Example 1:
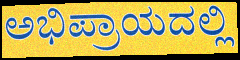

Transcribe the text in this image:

ಅಭಿಪ್ರಾಯದಲ್ಲಿ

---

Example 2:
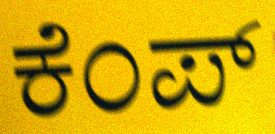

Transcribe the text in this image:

ಕೆಂಪ್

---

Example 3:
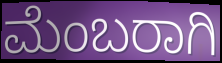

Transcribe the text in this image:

ಮೆಂಬರಾಗಿ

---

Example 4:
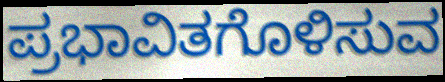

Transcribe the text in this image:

ಪ್ರಭಾವಿತಗೊಳಿಸುವ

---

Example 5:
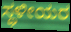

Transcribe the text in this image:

ಸ್ಥಳೀಯರ